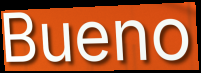
Bueno